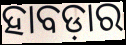
ହାବଡ଼ାର